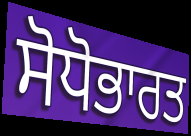
ਸੋਧੋਭਾਰਤ